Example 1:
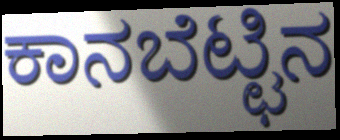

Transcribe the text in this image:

ಕಾನಬೆಟ್ಟಿನ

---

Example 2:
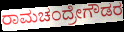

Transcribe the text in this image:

ರಾಮಚಂದ್ರೇಗೌಡರ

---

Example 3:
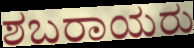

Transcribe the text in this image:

ಶಬರಾಯರು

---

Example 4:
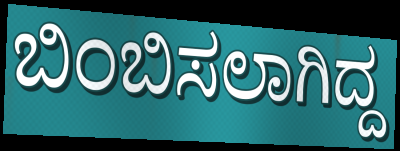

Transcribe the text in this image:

ಬಿಂಬಿಸಲಾಗಿದ್ದ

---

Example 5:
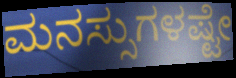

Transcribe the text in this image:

ಮನಸ್ಸುಗಳಷ್ಟೇ